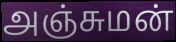
அஞ்சுமன்